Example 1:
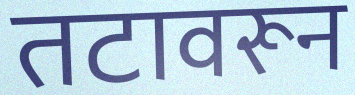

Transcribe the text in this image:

तटावरून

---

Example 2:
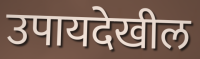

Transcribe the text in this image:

उपायदेखील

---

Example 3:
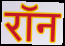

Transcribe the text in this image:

रॉन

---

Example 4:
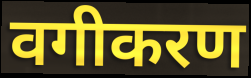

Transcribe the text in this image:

वगीकरण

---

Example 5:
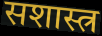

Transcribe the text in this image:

सशास्त्र